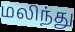
மலிந்து